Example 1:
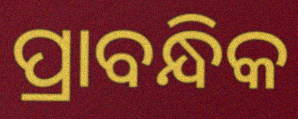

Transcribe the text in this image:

ପ୍ରାବନ୍ଧିକ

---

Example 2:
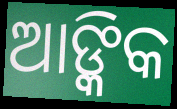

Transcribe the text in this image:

ଆଙ୍କିକ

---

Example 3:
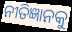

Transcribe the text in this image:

ନୀତିଜ୍ଞାନକୁ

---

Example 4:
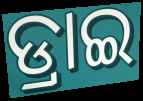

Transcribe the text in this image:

ଡ୍ରାଇ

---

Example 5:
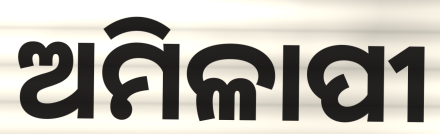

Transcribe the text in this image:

ଅମିଳାପୀ